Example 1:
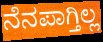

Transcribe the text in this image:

ನೆನಪಾಗ್ತಿಲ್ಲ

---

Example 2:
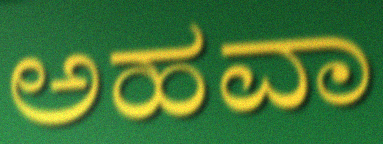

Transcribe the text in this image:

ಅಹವಾ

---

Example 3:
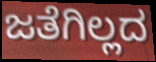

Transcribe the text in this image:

ಜತೆಗಿಲ್ಲದ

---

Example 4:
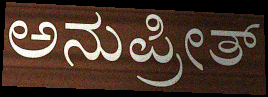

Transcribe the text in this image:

ಅನುಪ್ರೀತ್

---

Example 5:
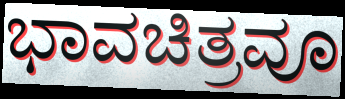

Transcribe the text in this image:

ಭಾವಚಿತ್ರವೂ